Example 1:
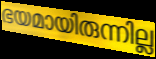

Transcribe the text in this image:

ഭയമായിരുന്നില്ല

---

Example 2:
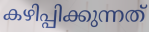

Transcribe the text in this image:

കഴിപ്പിക്കുന്നത്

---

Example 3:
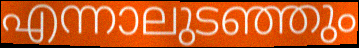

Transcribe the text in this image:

എന്നാലുടഞ്ഞും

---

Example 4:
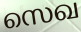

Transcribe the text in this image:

സെഖ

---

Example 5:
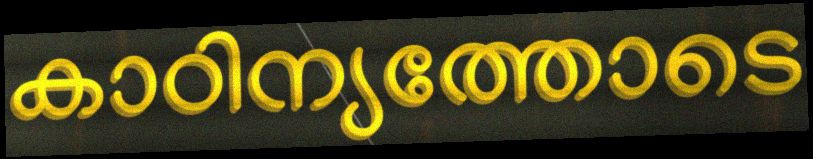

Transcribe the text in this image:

കാഠിന്യത്തോടെ